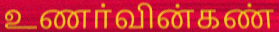
உணர்வின்கண்